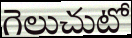
గెలుచుటో